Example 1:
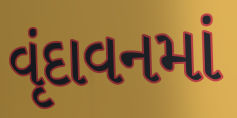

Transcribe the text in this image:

વૃંદાવનમાં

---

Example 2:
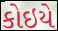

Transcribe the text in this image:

કોઇયે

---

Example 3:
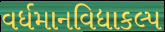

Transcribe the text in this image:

વર્ધમાનવિદ્યાકલ્પ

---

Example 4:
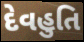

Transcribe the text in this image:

દેવહુતિ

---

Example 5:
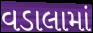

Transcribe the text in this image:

વડાલામાં